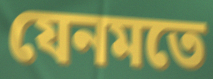
যেনমতে